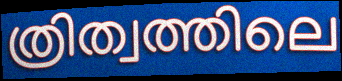
ത്രിത്വത്തിലെ